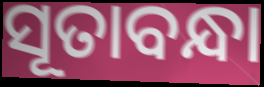
ସୂତାବନ୍ଧା